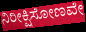
ನಿರೀಕ್ಷಿಸೋಣವೇ